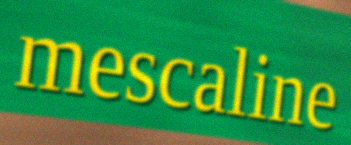
mescaline